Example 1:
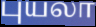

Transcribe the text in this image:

புயலா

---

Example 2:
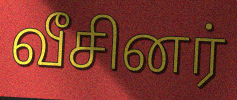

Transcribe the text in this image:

வீசினர்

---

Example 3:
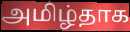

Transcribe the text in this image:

அமிழ்தாக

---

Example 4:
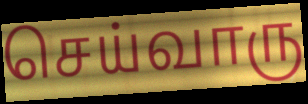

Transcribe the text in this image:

செய்வாரு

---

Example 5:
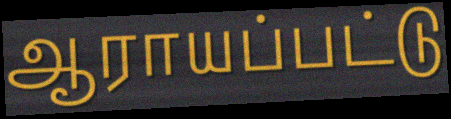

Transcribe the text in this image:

ஆராயப்பட்டு